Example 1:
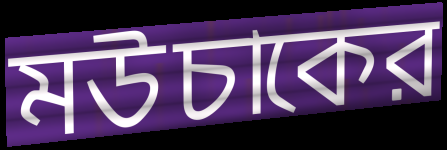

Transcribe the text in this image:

মউচাকের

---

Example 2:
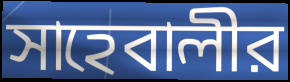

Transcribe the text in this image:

সাহেবালীর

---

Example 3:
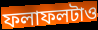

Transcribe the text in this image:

ফলাফলটাও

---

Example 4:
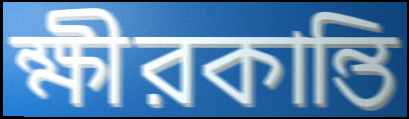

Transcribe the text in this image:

ক্ষীরকান্তি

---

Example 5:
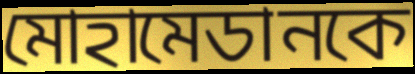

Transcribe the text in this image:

মোহামেডানকে